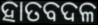
ହାତବଦଳ